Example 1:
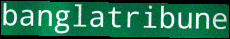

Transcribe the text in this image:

banglatribune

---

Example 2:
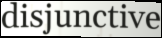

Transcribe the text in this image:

disjunctive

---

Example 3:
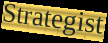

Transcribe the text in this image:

Strategist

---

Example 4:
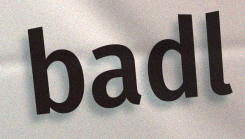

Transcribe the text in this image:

badl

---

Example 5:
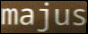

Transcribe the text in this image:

majus